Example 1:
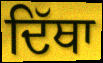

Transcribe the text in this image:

ਦਿੱਥਾ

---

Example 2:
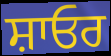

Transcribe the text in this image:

ਸ਼ਾਓਰ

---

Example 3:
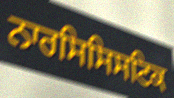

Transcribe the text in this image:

ਨਾਰਸਿਸਿਸਟਿਕ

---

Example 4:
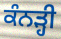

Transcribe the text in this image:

ਕੰਨੜ੍ਹੀ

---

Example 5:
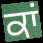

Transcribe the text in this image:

ਕਾਂ